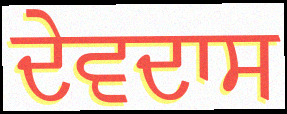
ਦੇਵਦਾਸ